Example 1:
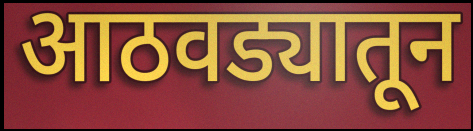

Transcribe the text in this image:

आठवड्यातून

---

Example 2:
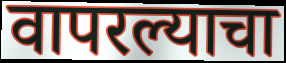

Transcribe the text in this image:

वापरल्याचा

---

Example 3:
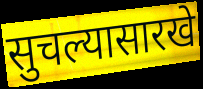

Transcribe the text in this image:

सुचल्यासारखे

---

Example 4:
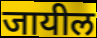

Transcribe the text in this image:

जायील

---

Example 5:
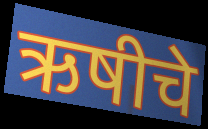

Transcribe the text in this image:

ऋषीचे